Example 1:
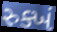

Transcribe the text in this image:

રુક્ખં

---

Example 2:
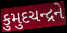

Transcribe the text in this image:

કુમુદચન્દ્રને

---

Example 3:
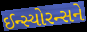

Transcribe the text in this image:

ઈન્સ્યોરન્સને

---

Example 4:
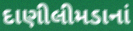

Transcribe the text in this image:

દાણીલીમડાનાં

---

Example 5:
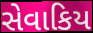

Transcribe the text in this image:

સેવાકિય